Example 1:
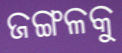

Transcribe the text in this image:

ଜଙ୍ଗଳକୁ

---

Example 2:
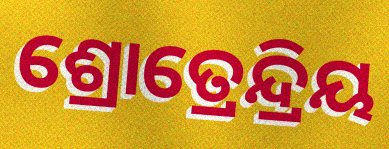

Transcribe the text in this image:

ଶ୍ରୋତ୍ରେନ୍ଦ୍ରିୟ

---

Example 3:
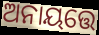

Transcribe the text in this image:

ଅନାୟତ୍ତେ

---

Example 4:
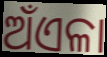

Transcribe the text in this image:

ଅଁଏଳା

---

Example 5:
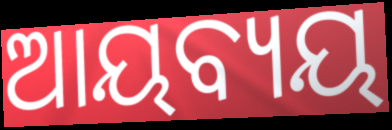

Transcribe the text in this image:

ଆୟବ୍ୟୟ